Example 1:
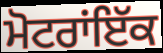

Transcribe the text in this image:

ਮੋਟਰਾਂਇੱਕ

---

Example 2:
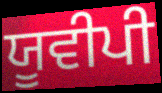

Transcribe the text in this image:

ਯੂਵੀਪੀ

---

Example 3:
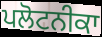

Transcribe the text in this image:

ਪਲੋਟਨੀਕਾ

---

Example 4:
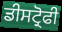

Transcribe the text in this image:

ਡੀਸਟ੍ਰੋਫੀ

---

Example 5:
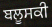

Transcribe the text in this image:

ਬਲੂਸਕੀ